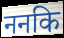
ननकि